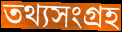
তথ্যসংগ্ৰহ